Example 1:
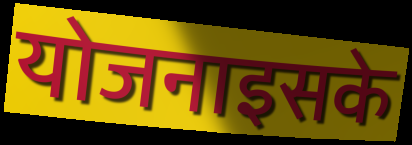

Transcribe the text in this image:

योजनाइसके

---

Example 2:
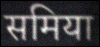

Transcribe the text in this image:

समिया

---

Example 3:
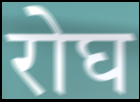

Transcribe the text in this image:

रोघ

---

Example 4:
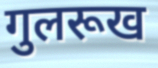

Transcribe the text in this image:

गुलरूख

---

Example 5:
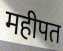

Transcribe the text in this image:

महीपत